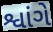
શ્વાંગે